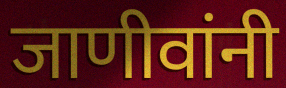
जाणीवांनी